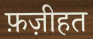
फ़ज़ीहत